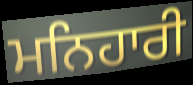
ਮਨਿਹਾਰੀ